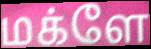
மக்ளே